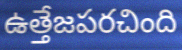
ఉత్తేజపరచింది